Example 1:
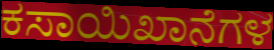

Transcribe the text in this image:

ಕಸಾಯಿಖಾನೆಗಳ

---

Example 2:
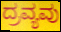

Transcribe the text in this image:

ದ್ರವ್ಯವು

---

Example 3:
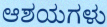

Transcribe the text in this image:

ಆಶಯಗಳು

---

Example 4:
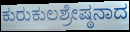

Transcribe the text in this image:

ಕುರುಕುಲಶ್ರೇಷ್ಠನಾದ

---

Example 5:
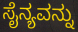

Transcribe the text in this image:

ಸೈನ್ಯವನ್ನು